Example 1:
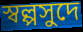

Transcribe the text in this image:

স্বল্পসুদে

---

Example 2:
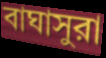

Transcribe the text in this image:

বাঘাসুরা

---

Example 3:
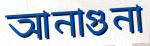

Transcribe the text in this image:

আনাগুনা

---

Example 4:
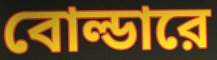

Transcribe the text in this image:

বোল্ডারে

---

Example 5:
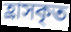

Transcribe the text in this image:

হ্রাসকৃত